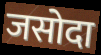
जसोदा